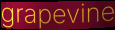
grapevine